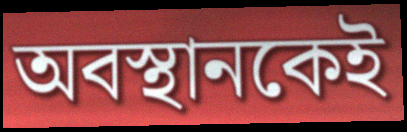
অবস্থানকেই